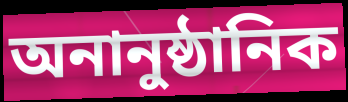
অনানুষ্ঠানিক